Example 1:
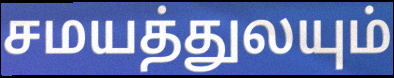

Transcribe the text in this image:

சமயத்துலயும்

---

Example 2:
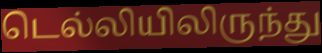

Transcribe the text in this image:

டெல்லியிலிருந்து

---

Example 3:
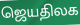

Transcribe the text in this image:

ஜெயதிலக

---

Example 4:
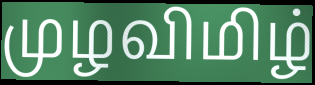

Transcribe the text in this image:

முழவிமிழ்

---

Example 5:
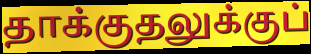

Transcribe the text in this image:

தாக்குதலுக்குப்